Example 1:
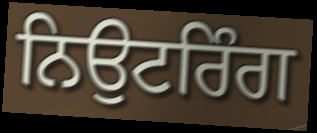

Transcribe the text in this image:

ਨਿਉਟਰਿੰਗ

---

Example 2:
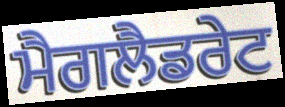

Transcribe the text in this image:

ਮੈਗਲੈਡਰੇਟ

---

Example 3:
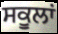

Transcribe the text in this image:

ਸਕੂਲਾਂ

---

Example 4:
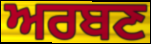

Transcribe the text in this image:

ਅਰਬਣ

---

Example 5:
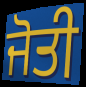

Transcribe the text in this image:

ਜੋਤੀ